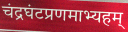
चंद्रघंटप्रणमाभ्यहम्